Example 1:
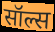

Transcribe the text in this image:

सॉल्स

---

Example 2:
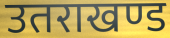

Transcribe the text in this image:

उतराखण्ड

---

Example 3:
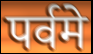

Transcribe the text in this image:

पर्वमे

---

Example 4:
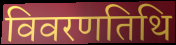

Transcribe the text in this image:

विवरणतिथि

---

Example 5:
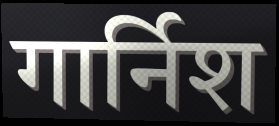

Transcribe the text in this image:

गार्निश